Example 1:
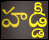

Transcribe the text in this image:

హడ్డీ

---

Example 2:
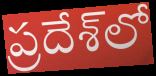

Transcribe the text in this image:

ప్రదేశ్‌లో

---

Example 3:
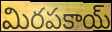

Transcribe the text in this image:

మిరపకాయ్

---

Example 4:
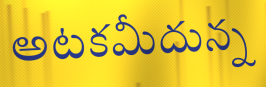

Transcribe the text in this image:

అటకమీదున్న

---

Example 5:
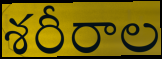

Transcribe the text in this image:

శరీరాల